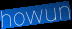
howun